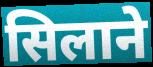
सिलाने